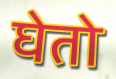
घेतो